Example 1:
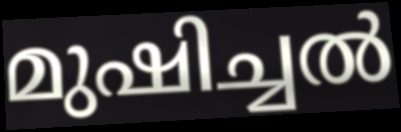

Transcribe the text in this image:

മുഷിച്ചൽ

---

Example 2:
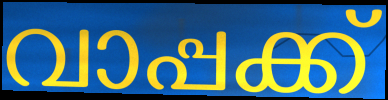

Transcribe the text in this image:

വാപ്പക്ക്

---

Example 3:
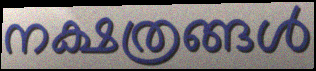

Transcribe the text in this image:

നക്ഷത്രങ്ങൾ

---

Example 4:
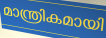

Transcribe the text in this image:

മാന്ത്രികമായി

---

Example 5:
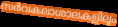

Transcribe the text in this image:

സർവകലാശാലകളിലും